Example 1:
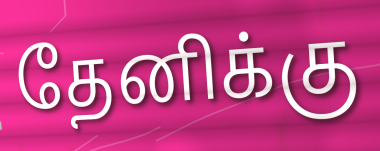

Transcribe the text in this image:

தேனிக்கு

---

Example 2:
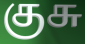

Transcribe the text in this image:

குசு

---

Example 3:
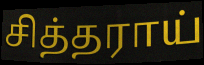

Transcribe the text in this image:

சித்தராய்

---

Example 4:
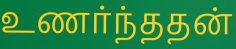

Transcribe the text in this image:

உணர்ந்ததன்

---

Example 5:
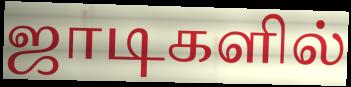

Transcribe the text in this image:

ஜாடிகளில்